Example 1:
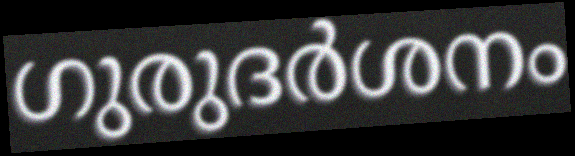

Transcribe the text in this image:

ഗുരുദർശനം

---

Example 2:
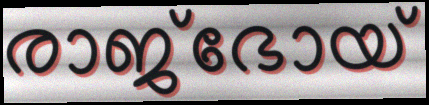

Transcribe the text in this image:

രാജ്ഭോയ്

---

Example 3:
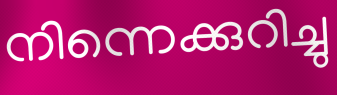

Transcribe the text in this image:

നിന്നെക്കുറിച്ചു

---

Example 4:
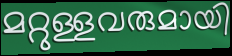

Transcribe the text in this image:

മറ്റുള്ളവരുമായി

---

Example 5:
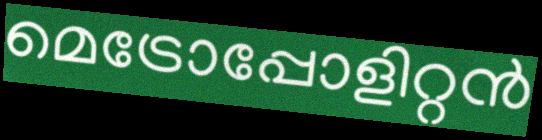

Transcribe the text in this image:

മെട്രോപ്പോളിറ്റൻ